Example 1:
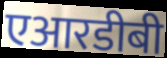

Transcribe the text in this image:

एआरडीबी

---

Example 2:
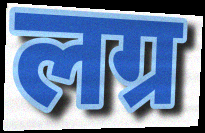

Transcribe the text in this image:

लग्र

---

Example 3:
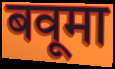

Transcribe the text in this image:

बवूमा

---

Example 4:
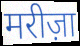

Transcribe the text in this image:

मरीज़ा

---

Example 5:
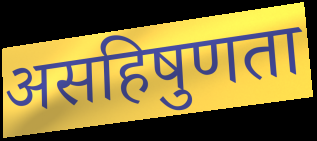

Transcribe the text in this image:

असहिषुणता